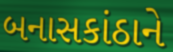
બનાસકાંઠાને